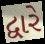
દ્વારે